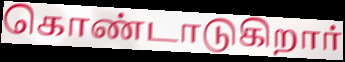
கொண்டாடுகிறார்